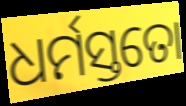
ଧର୍ମସ୍ତତୋ